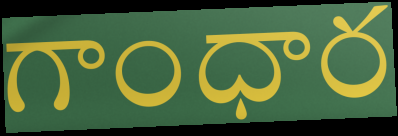
గాంధార